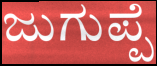
ಜುಗುಪ್ಪೆ